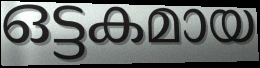
ഒട്ടകമായ